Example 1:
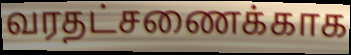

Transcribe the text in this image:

வரதட்சணைக்காக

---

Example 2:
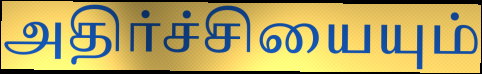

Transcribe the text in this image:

அதிர்ச்சியையும்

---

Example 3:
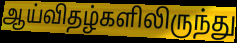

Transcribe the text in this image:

ஆய்விதழ்களிலிருந்து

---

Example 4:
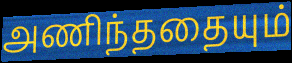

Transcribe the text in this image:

அணிந்ததையும்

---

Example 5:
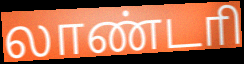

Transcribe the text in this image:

லாண்டரி